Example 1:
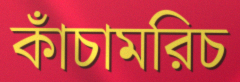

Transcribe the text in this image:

কাঁচামরিচ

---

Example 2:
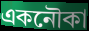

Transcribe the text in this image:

একনৌকা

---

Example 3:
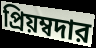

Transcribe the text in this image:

প্রিয়ম্বদার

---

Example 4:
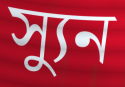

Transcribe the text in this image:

স্যুন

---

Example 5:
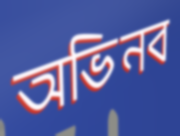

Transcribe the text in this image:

অভিনব